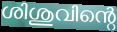
ശിശുവിന്റെ